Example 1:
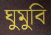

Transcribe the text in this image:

ঘুমুবি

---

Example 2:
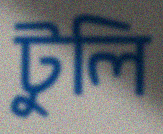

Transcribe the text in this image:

টুলি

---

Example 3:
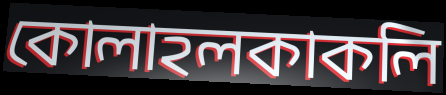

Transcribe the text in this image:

কোলাহলকাকলি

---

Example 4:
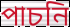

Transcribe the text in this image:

পাচনি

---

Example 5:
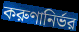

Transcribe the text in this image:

করুণানির্ভর